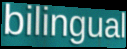
bilingual